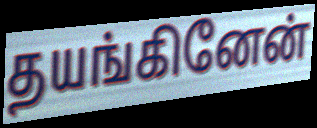
தயங்கினேன்